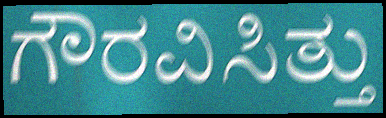
ಗೌರವಿಸಿತ್ತು